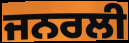
ਜਨਰਲੀ